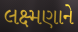
લક્ષ્મણાને